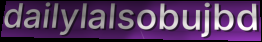
dailylalsobujbd